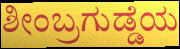
ಶೀಂಬ್ರಗುಡ್ಡೆಯ